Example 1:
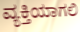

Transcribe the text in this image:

ವ್ಯಕ್ತಿಯಾಗಲಿ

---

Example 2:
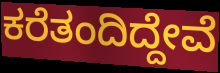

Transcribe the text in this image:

ಕರೆತಂದಿದ್ದೇವೆ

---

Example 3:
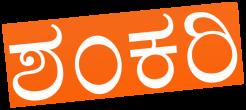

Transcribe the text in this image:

ಶಂಕರಿ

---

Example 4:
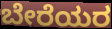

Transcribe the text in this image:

ಬೇರೆಯರ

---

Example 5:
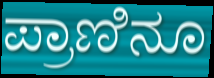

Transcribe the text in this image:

ಪ್ರಾಣಿನೂ